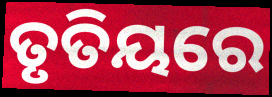
ତୃତିୟରେ